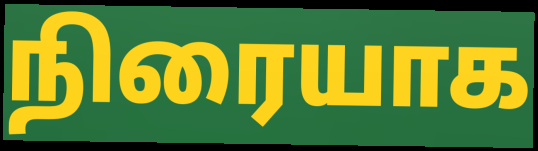
நிரையாக